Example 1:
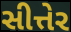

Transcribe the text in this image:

સીત્તેર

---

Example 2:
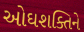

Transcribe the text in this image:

ઓઘશક્તિને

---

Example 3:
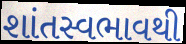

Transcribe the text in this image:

શાંતસ્વભાવથી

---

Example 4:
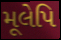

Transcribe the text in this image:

મૂલેપિ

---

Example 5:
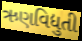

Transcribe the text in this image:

ઋણવિદ્યુતી